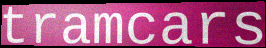
tramcars